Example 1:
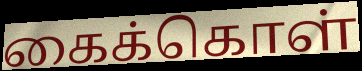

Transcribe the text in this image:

கைக்கொள்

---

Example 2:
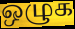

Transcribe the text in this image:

ஒழுக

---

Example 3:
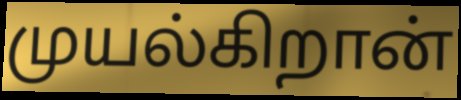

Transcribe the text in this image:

முயல்கிறான்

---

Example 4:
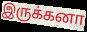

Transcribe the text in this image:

இருக்கனா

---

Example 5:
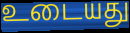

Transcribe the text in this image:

உடையது